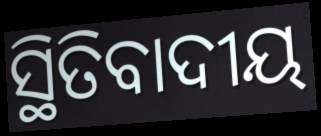
ସ୍ଥିତିବାଦୀୟ